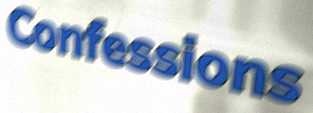
Confessions